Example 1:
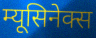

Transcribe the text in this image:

म्यूसिनेक्स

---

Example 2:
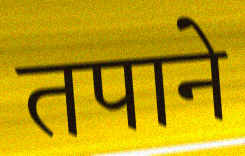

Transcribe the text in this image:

तपाने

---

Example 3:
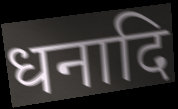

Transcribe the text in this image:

धनादि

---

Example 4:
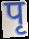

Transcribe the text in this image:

पृ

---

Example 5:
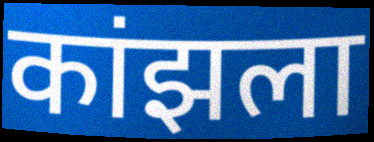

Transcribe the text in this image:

कांझला